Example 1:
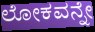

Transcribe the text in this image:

ಲೋಕವನ್ನೇ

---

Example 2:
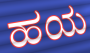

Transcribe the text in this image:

ಹಯ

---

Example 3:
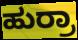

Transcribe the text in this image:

ಹುರ್ರಾ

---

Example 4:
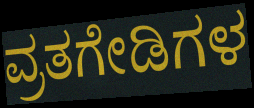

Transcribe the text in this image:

ವ್ರತಗೇಡಿಗಳ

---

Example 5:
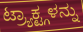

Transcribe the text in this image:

ಟ್ರ್ಯಾಕ್ಟ್ಗಳನ್ನು